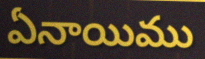
ఏనాయిము